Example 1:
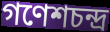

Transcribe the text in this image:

গণেশচন্দ্র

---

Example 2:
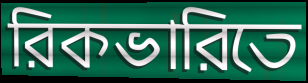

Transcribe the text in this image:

রিকভারিতে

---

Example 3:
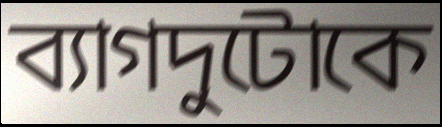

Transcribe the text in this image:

ব্যাগদুটোকে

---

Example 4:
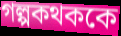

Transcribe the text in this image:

গল্পকথককে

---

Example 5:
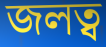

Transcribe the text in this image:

জলত্ব